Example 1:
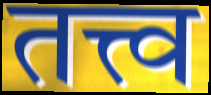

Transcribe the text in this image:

तत्त्व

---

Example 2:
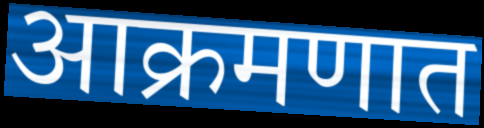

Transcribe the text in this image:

आक्रमणात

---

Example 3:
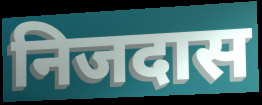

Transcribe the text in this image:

निजदास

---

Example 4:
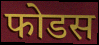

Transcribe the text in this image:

फोडस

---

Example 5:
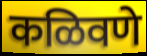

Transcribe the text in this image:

कळिवणे